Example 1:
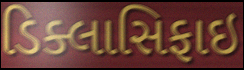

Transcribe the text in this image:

ડિક્લાસિફાઇ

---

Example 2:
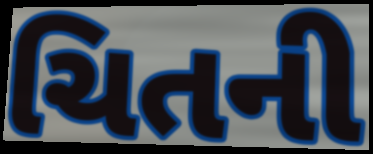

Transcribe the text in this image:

ચિતની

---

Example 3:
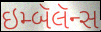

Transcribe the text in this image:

ઇમ્બૅલૅન્સ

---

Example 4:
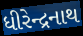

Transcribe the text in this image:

ધીરેન્દ્રનાથ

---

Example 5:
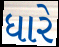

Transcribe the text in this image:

ધારે